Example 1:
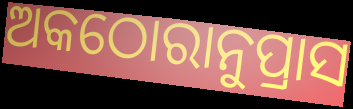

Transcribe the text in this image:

ଅକଠୋରାନୁପ୍ରାସ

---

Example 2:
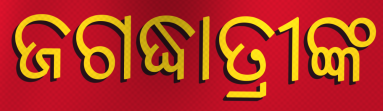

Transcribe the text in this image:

ଜଗଦ୍ଧାତ୍ରୀଙ୍କ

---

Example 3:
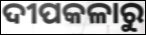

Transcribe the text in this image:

ଦୀପକଳାରୁ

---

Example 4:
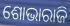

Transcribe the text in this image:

ଶୋଭାରାଜି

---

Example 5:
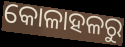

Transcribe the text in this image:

କୋଳାହଳରୁ